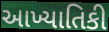
આખ્યાતિકી